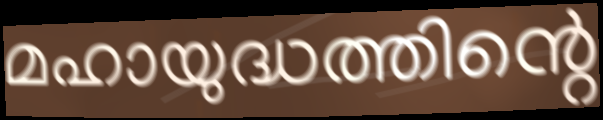
മഹായുദ്ധത്തിന്റെ